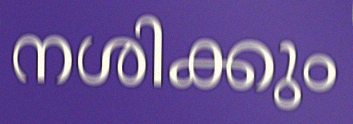
നശിക്കും